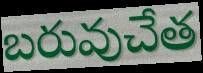
బరువుచేత